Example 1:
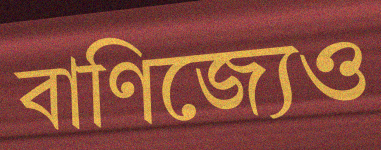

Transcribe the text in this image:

বাণিজ্যেও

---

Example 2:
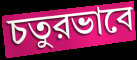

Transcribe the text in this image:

চতুরভাবে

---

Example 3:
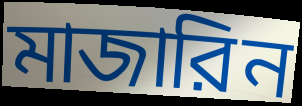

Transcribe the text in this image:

মাজারিন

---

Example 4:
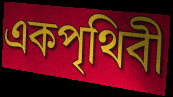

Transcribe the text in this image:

একপৃথিবী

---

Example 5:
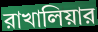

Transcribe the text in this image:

রাখালিয়ার